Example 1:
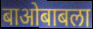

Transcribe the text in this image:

बाओबाबला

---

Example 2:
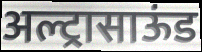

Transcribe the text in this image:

अल्ट्रासाऊंड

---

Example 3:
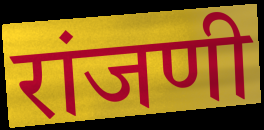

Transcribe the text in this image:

रांजणी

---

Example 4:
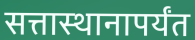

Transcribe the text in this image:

सत्तास्थानापर्यंत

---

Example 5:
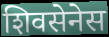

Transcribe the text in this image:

शिवसेनेस